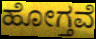
ಹೋಗ್ತವೆ